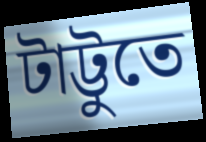
টাট্টুতে